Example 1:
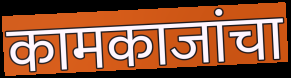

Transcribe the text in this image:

कामकाजांचा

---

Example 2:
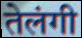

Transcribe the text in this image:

तेलंगी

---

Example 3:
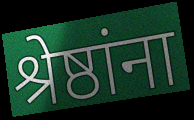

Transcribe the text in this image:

श्रेष्ठांना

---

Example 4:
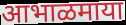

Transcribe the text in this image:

आभाळमाया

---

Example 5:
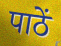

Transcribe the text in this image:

पाठें